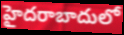
హైదరాబాదులో